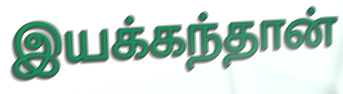
இயக்கந்தான்